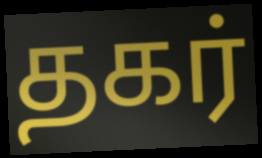
தகர்